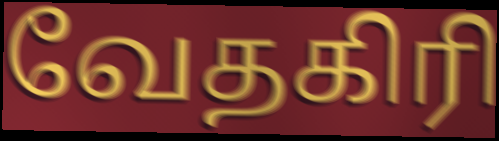
வேதகிரி